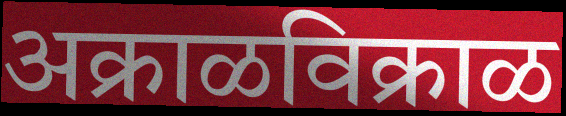
अक्राळविक्राळ